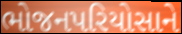
ભોજનપરિયોસાને